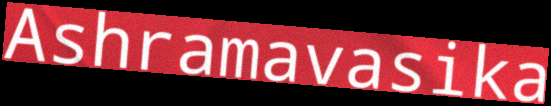
Ashramavasika